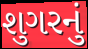
શુગરનું